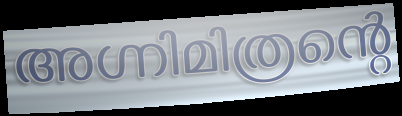
അഗ്നിമിത്രന്റെ